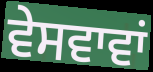
ਵੇਸਵਾਵਾਂ